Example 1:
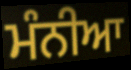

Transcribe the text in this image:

ਮੰਨੀਆ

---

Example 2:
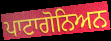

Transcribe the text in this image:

ਪਾਟਾਗੋਨਿਅਨ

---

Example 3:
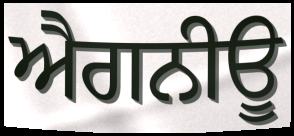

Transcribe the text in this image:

ਐਗਨੀਊ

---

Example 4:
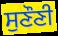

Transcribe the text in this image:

ਸੁਣੌਣੀ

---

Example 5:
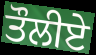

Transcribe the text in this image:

ਤੌਲੀਏ